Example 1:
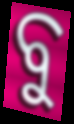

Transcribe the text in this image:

ବୁ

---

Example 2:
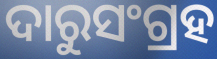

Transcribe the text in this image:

ଦାରୁସଂଗ୍ରହ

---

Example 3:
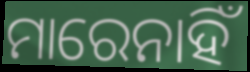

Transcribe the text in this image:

ମାରେନାହିଁ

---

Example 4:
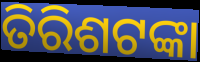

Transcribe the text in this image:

ତିରିଶଟଙ୍କା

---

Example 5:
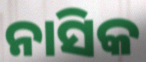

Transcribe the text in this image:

ନାସିକ